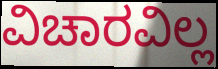
ವಿಚಾರವಿಲ್ಲ